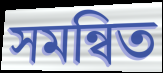
সমন্বিত